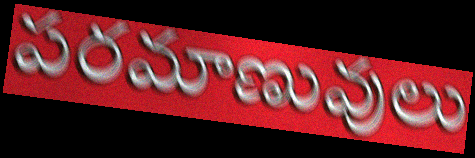
పరమాణువులు